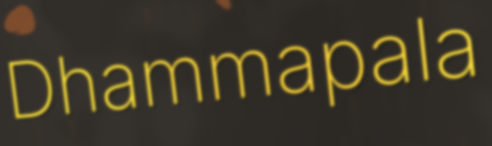
Dhammapala